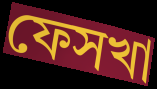
ফেসখা